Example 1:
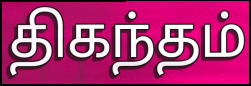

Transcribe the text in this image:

திகந்தம்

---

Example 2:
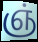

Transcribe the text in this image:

ஞ்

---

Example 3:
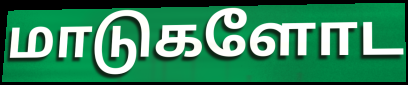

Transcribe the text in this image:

மாடுகளோட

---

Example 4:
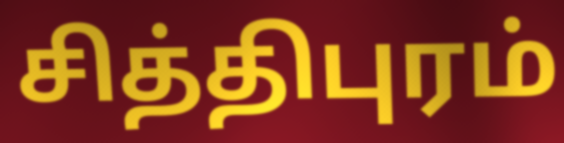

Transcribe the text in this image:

சித்திபுரம்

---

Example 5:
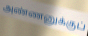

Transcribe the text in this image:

அண்ணனுக்குப்